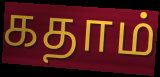
கதாம்